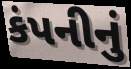
કંપનીનું